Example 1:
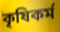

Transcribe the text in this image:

কৃষিকর্ম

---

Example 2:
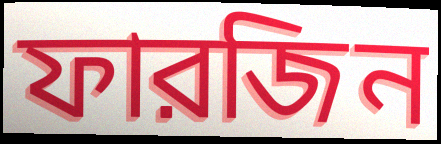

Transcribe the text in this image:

ফারজিন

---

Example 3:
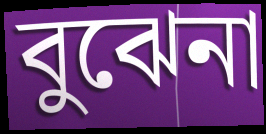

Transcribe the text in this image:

বুঝেনা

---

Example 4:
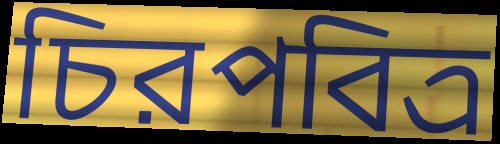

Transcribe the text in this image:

চিরপবিত্র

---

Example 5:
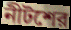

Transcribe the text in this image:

নীটশের